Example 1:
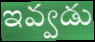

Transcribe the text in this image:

ఇవ్వడు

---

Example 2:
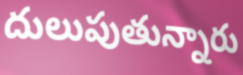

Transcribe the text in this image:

దులుపుతున్నారు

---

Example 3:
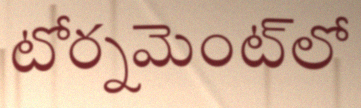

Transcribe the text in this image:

టోర్నమెంట్‌లో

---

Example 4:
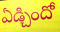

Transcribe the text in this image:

ఏడ్చిందో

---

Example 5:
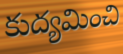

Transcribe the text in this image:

కుద్యమించి